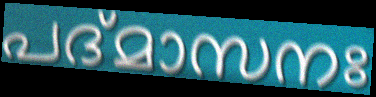
പദ്മാസനഃ